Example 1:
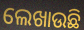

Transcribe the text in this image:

ଲେଖାଉଛି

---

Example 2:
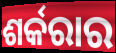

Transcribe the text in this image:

ଶର୍କରାର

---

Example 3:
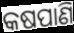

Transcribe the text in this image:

କଷପାଣି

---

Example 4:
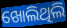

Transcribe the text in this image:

ଖୋଲିଥିଲି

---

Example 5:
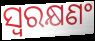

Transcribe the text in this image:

ସ୍ୱରକ୍ଷଣଂ